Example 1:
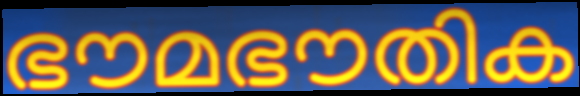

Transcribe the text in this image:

ഭൗമഭൗതിക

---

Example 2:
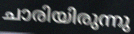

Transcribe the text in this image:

ചാരിയിരുന്നു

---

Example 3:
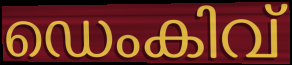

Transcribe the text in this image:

ഡെംകിവ്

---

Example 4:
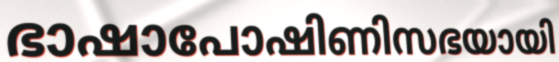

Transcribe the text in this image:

ഭാഷാപോഷിണിസഭയായി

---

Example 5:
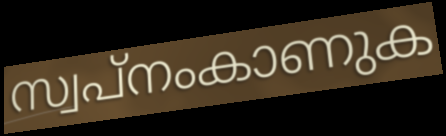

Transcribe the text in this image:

സ്വപ്നംകാണുക